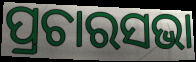
ପ୍ରଚାରସଭା